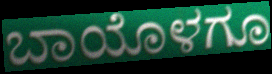
ಬಾಯೊಳಗೂ